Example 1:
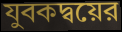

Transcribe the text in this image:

যুবকদ্বয়ের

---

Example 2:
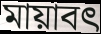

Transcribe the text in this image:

মায়াবৎ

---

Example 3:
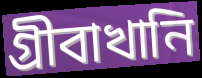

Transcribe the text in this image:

গ্রীবাখানি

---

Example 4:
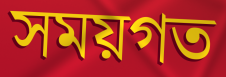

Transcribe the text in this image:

সময়গত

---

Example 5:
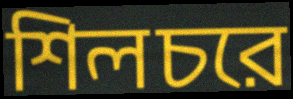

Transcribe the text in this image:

শিলচরে